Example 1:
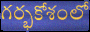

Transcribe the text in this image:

గర్భకోశంలో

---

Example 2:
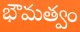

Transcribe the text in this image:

భౌమత్వం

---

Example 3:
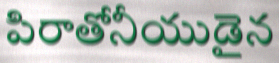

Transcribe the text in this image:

పిరాతోనీయుడైన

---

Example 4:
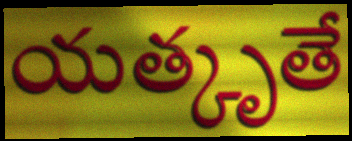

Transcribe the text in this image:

యత్కృతే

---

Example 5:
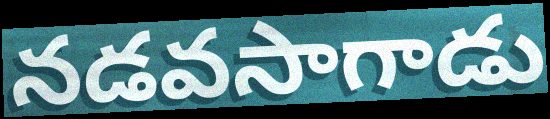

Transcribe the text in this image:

నడవసాగాడు